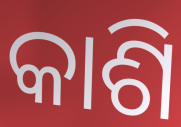
କାଶି